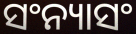
ସଂନ୍ୟାସଂ